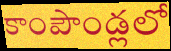
కాంపౌండ్లలో